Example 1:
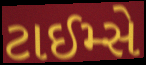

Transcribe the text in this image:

ટાઈમ્સે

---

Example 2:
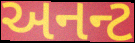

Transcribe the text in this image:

અનન્ટ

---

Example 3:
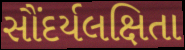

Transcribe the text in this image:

સૌંદર્યલક્ષિતા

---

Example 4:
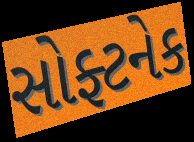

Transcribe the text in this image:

સોફ્ટનેક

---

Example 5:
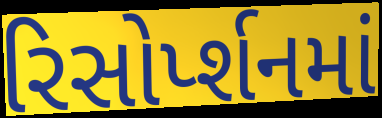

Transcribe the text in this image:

રિસોર્પ્શનમાં